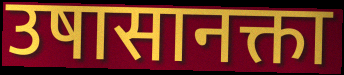
उषासानक्ता